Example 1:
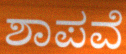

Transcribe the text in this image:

ಶಾಪವೆ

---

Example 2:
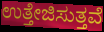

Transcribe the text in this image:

ಉತ್ತೇಜಿಸುತ್ತವೆ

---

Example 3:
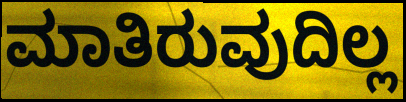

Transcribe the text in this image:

ಮಾತಿರುವುದಿಲ್ಲ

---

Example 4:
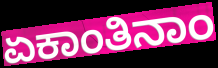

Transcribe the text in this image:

ಏಕಾಂತಿನಾಂ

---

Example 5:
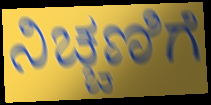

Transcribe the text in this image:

ನಿಚ್ಚಣಿಗೆ